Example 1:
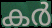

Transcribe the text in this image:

കർ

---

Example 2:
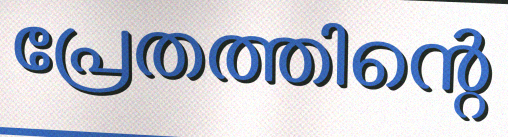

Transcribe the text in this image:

പ്രേതത്തിന്റെ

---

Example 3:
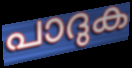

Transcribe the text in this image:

പാദുക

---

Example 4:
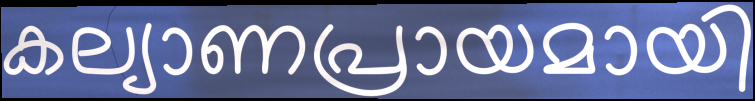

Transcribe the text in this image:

കല്യാണപ്രായമായി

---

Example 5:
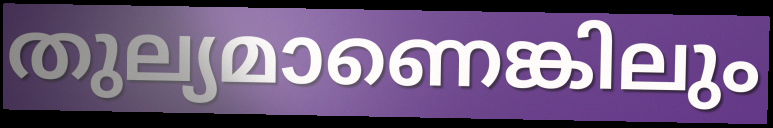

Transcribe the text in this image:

തുല്യമാണെങ്കിലും